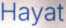
Hayat